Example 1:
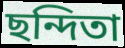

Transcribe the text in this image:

ছন্দিতা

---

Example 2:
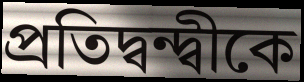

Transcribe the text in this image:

প্রতিদ্বন্দ্বীকে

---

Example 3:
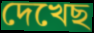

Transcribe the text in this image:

দেখেছ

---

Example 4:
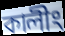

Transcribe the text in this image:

কালীং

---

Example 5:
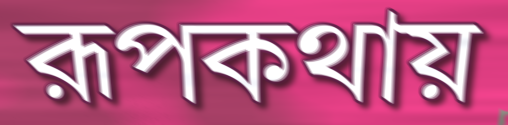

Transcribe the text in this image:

রূপকথায়